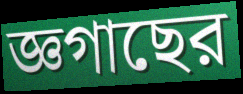
জ্ঞগাছের